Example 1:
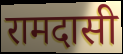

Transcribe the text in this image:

रामदासी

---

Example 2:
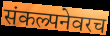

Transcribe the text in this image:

संकल्पनेवरच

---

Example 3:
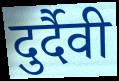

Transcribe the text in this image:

दुर्दैवी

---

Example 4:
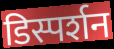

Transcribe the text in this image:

डिस्पर्शन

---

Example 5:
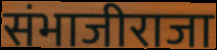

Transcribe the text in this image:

संभाजीराजा